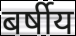
बर्षीय